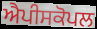
ਐਪੀਸਕੋਪਲ